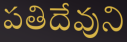
పతిదేవుని